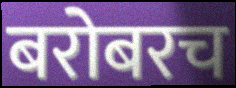
बरोबरच